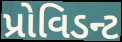
પ્રોવિડન્ટ